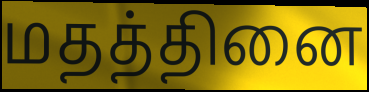
மதத்தினை